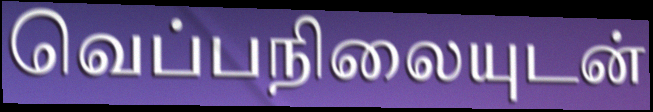
வெப்பநிலையுடன்